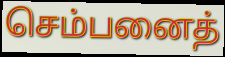
செம்பனைத்